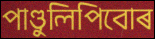
পাণ্ডুলিপিবোৰ